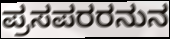
ಪ್ರಸಪರರನುನ